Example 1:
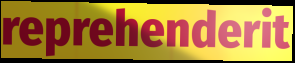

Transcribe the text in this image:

reprehenderit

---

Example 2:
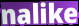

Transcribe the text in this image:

nalike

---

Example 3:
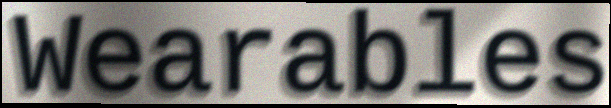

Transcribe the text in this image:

Wearables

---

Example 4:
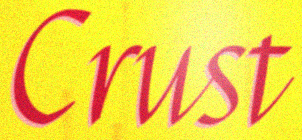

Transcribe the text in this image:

Crust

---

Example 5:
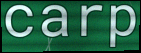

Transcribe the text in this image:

carp